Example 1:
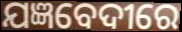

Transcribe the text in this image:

ଯଜ୍ଞବେଦୀରେ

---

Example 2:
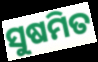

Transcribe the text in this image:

ସୁଷମିତ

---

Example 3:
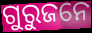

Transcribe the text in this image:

ଗୁରୁଜନେ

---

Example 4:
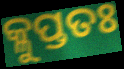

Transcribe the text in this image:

କ୍ଳୁପ୍ତତଃ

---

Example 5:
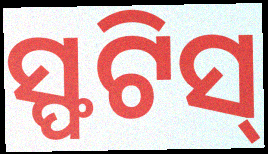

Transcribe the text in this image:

ସ୍ଫଟିସ୍